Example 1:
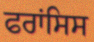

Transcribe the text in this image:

ਫਰਾਂਸਿਸ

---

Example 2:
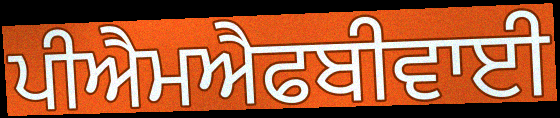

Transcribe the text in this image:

ਪੀਐਮਐਫਬੀਵਾਈ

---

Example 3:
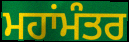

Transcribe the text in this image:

ਮਹਾਂਮੰਤਰ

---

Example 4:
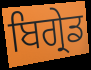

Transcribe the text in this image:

ਬਿਗ੍ਰੇਡ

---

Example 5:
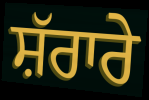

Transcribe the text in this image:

ਸ਼ੱਰਾਰੇ